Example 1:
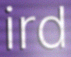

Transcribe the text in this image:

ird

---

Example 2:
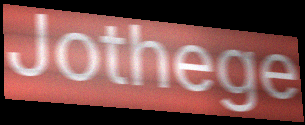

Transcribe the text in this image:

Jothege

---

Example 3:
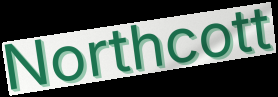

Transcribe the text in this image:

Northcott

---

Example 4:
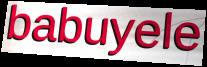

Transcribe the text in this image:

babuyele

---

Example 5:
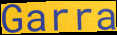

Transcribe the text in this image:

Garra